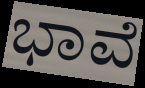
ಭಾವೆ